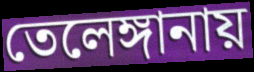
তেলেঙ্গানায়